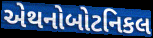
એથનોબોટનિકલ